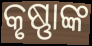
କୃଷ୍ଣାଙ୍କ